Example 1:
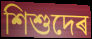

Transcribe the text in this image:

শিশুদেৰ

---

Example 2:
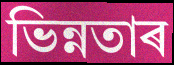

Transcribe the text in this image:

ভিন্নতাৰ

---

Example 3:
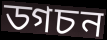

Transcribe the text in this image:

ডগচন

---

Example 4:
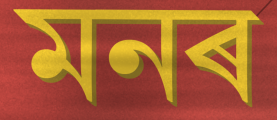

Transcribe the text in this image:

মনৰ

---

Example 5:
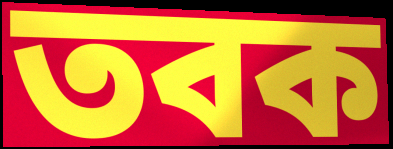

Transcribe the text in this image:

তবক